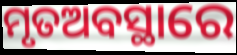
ମୃତଅବସ୍ଥାରେ